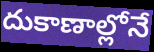
దుకాణాల్లోనే